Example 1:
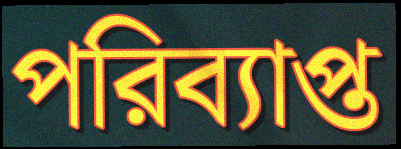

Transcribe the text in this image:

পরিব্যাপ্ত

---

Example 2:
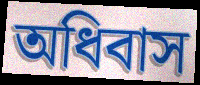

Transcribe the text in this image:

অধিবাস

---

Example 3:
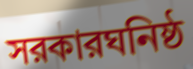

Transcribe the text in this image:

সরকারঘনিষ্ঠ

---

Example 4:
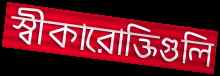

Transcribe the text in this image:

স্বীকারোক্তিগুলি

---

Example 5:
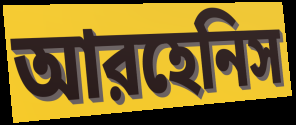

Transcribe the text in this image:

আরহেনিস